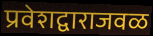
प्रवेशद्वाराजवळ